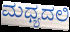
ಮಧ್ಯದಲಿ